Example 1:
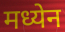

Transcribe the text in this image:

मध्येन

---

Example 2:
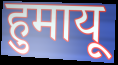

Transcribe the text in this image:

हुमायू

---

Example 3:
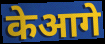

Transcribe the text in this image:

केआगे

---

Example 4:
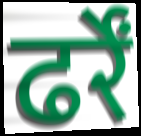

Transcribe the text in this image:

ढर्रें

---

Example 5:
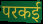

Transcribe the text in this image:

परकई